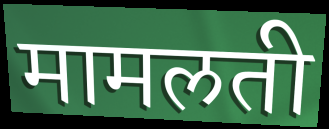
मामलती